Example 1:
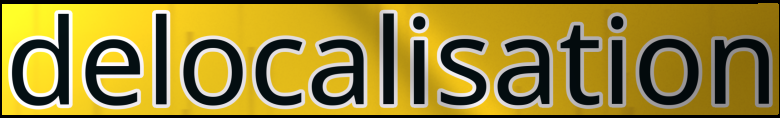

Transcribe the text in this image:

delocalisation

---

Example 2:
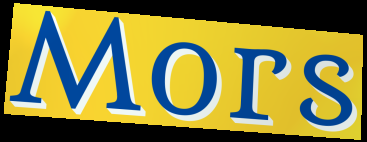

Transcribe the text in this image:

Mors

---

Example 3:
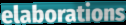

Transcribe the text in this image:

elaborations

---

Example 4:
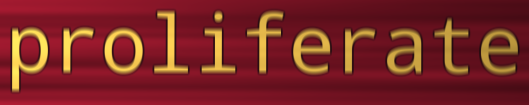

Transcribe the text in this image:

proliferate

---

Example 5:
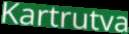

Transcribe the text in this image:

Kartrutva